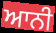
ਆਨੀ